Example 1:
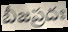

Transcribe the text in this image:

బీజప్రదః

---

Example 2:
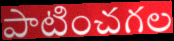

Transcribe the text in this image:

పాటించగల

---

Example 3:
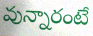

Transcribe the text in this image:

వున్నారంటే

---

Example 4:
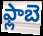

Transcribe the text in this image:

ఫ్లాబె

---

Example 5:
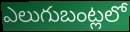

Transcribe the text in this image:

ఎలుగుబంట్లలో